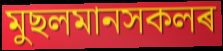
মুছলমানসকলৰ